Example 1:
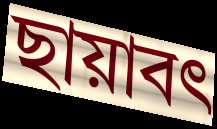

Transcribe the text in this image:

ছায়াবৎ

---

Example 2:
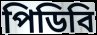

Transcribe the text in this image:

পিডিবি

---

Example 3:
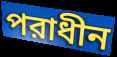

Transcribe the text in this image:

পরাধীন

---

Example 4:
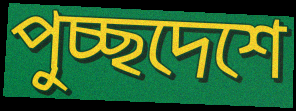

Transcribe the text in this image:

পুচ্ছদেশে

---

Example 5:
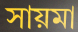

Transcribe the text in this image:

সায়মা